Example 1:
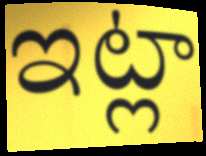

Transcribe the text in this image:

ఇట్లా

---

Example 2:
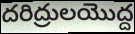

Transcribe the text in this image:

దరిద్రులయొద్ద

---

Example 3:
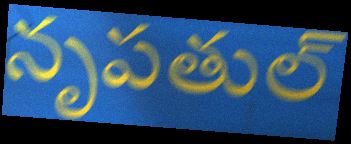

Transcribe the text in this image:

నృపతుల్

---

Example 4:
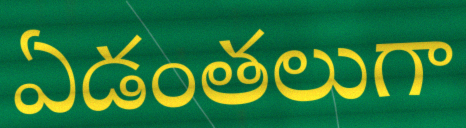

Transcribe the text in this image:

ఏడంతలుగా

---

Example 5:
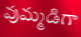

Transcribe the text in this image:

వుమ్మడిగా